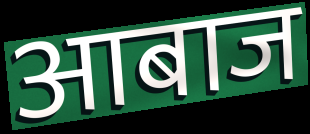
आबाज